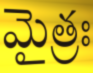
మైత్రః